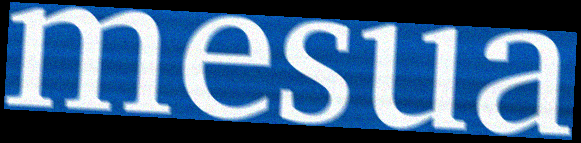
mesua